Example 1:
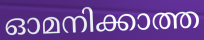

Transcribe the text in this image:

ഓമനിക്കാത്ത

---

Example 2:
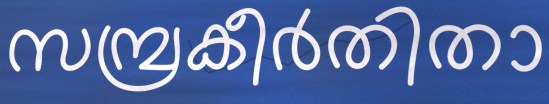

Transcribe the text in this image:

സമ്പ്രകീർതിതാ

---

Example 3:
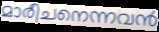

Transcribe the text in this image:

മാരീചനെന്നവൻ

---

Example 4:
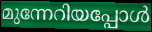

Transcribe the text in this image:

മുന്നേറിയപ്പോൾ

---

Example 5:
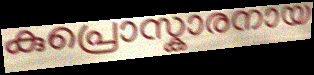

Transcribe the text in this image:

കുപ്രൊസ്കാരനായ